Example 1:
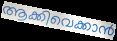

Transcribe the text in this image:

ആക്കിവെക്കാൻ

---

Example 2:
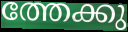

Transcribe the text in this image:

ത്തേക്കു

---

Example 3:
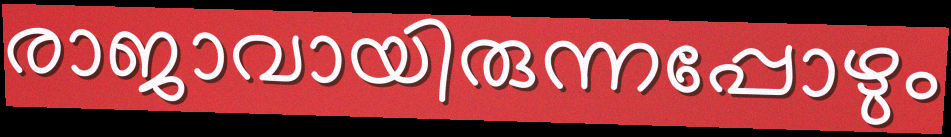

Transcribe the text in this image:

രാജാവായിരുന്നപ്പോഴും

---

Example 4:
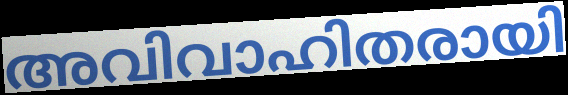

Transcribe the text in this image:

അവിവാഹിതരായി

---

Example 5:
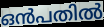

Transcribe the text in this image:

ഒൻപതിൽ